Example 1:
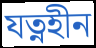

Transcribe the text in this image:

যত্নহীন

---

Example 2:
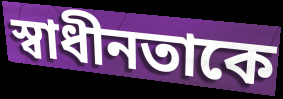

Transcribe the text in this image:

স্বাধীনতাকে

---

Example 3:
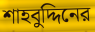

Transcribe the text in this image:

শাহবুদ্দিনের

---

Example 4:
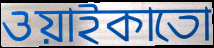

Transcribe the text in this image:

ওয়াইকাতো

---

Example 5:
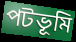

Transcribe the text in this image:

পটভূমি